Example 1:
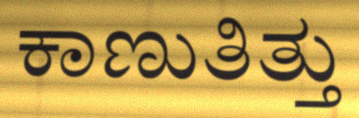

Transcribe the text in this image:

ಕಾಣುತಿತ್ತು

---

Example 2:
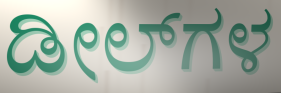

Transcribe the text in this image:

ಡೀಲ್‌ಗಳ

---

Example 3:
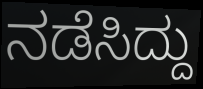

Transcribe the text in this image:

ನಡೆಸಿದ್ದು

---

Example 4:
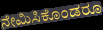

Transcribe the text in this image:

ನೇಮಿಸಿಕೊಂಡರೂ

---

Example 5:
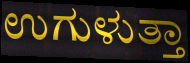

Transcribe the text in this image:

ಉಗುಳುತ್ತಾ